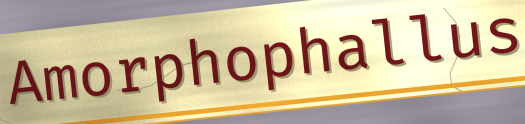
Amorphophallus